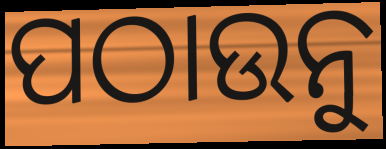
ପଠାଉନୁ